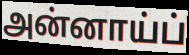
அன்னாய்ப்